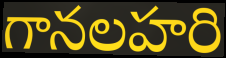
గానలహరి